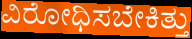
ವಿರೋಧಿಸಬೇಕಿತ್ತು